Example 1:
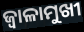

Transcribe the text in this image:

ଜ୍ୱାଳାମୁଖୀ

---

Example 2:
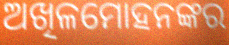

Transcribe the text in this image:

ଅଖିଳମୋହନଙ୍କର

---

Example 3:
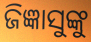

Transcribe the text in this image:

ଜିଜ୍ଞାସୁଙ୍କୁ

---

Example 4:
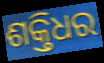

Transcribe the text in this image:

ଶକ୍ତିଧର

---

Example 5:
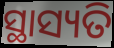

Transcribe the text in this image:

ସ୍ଥାସ୍ୟତି